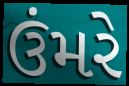
ઉંમરે